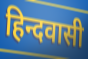
हिन्दवासी